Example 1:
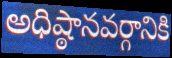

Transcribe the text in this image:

అధిష్ఠానవర్గానికి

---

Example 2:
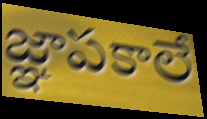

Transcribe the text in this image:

జ్ఞాపకాలే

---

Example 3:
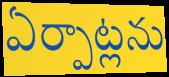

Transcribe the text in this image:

ఏర్పాట్లను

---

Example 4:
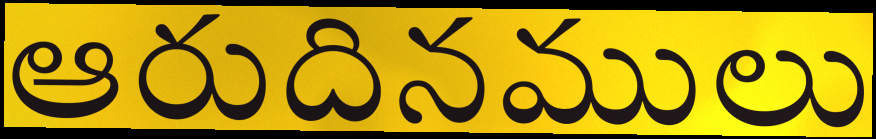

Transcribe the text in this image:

ఆరుదినములు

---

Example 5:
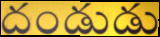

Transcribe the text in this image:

దండుడు